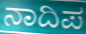
ನಾದಿಪ